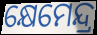
କ୍ଷେମେନ୍ଦ୍ର